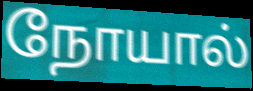
நோயால்